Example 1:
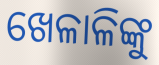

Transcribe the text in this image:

ଖେଳାଳିଙ୍କୁ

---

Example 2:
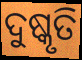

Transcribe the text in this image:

ଦୁଷ୍କୃତି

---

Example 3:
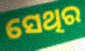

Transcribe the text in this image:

ସେଥିର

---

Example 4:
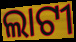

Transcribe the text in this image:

ଲାଟୀ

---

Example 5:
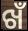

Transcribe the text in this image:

ଖଁ